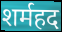
शर्महद